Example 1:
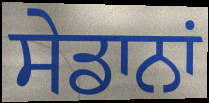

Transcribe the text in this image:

ਸੇਡਾਨਾਂ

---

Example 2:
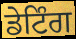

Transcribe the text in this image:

ਡੇਟਿੰਗ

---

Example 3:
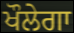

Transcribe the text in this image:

ਖੌਲੇਗਾ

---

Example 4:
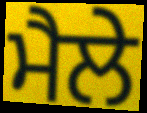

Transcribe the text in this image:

ਮੈਲੇ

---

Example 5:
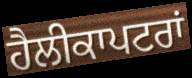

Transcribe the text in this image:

ਹੈਲੀਕਾਪਟਰਾਂ